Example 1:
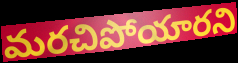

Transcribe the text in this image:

మరచిపోయారని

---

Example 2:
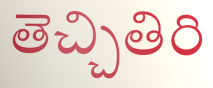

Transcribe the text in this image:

తెచ్చితిరి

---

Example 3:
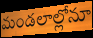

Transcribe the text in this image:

మండలాల్లోనూ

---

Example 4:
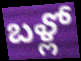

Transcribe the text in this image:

బళ్లో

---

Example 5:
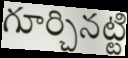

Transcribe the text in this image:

గూర్చినట్టి